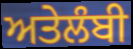
ਅਤੇਲੰਬੀ